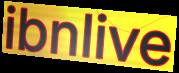
ibnlive